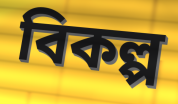
বিকল্প